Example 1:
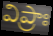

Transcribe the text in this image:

విప్రాః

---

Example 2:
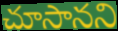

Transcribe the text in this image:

చూసానని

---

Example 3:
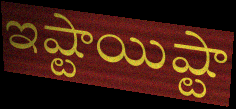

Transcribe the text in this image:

ఇష్టాయిష్టా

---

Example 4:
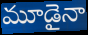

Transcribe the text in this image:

మూడైనా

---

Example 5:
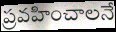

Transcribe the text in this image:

ప్రవహించాలనే